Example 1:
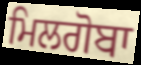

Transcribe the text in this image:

ਮਿਲਗੋਬਾ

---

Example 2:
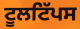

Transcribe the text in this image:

ਟੂਲਟਿੱਪਸ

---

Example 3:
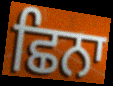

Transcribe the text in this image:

ਛਿਨਾ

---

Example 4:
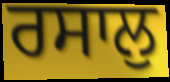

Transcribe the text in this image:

ਰਸਾਲੁ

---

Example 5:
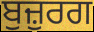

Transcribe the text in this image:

ਬੁਜ਼ੁਰਗ